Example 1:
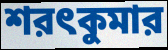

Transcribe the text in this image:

শরৎকুমার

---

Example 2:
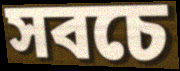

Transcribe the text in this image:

সবচে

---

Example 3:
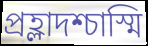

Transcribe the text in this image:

প্রহ্লাদশ্চাস্মি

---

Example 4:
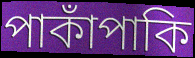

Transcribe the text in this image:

পাকাঁপাকি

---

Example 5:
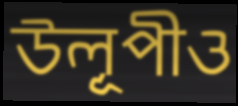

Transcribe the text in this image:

উলূপীও